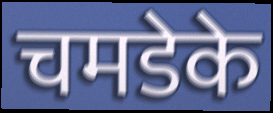
चमडेके